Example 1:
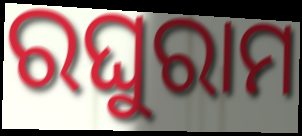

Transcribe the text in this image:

ରଘୁରାମ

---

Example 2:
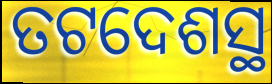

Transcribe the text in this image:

ତଟଦେଶସ୍ଥ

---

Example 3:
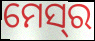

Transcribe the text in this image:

ମେସ୍‍ର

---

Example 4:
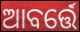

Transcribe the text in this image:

ଆବର୍ତ୍ତେ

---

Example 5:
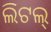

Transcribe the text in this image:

ଲିଟଲ୍